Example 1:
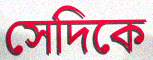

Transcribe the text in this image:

সেদিকে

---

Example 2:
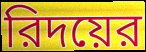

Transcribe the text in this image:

রিদয়ের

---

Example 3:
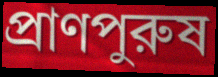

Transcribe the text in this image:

প্রাণপুরুষ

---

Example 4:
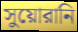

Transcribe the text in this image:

সুয়োরানি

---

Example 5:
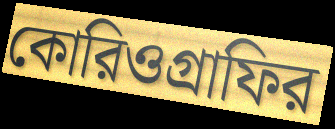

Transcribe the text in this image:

কোরিওগ্রাফির